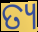
ତ୍ୟ